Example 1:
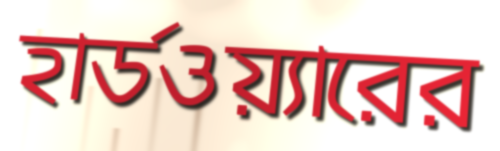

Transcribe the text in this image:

হার্ডওয়্যারের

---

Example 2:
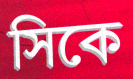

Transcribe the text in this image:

সিকে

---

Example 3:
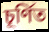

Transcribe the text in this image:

চূর্ণিত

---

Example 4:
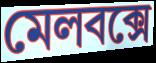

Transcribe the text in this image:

মেলবক্সে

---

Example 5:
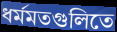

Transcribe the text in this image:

ধর্মমতগুলিতে